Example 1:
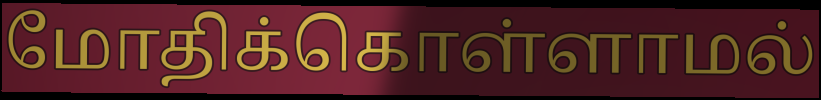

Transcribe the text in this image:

மோதிக்கொள்ளாமல்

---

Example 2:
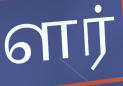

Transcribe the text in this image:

ளர்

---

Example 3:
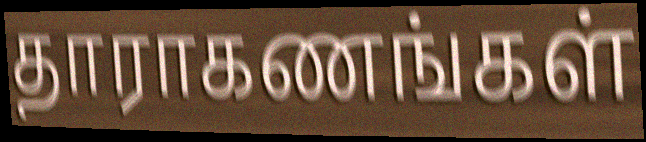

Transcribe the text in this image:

தாராகணங்கள்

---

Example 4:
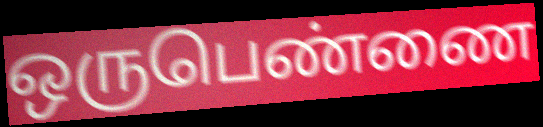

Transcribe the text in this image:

ஒருபெண்ணை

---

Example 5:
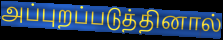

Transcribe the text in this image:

அப்புறப்படுத்தினால்